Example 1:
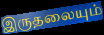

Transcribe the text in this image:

இருதலையும்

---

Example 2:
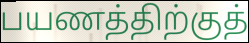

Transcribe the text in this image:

பயணத்திற்குத்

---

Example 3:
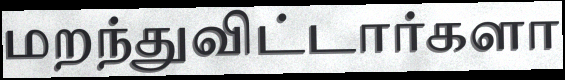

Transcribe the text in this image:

மறந்துவிட்டார்களா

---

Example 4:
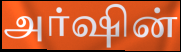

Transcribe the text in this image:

அர்ஷின்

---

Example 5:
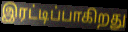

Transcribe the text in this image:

இரட்டிப்பாகிறது